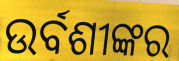
ଉର୍ବଶୀଙ୍କର